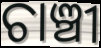
ଚାଞ୍ଚୀ